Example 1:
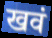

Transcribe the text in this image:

खवं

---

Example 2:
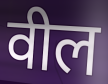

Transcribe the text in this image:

वील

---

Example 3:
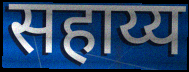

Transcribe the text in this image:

सहाय्य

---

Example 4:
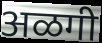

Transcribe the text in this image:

अळगी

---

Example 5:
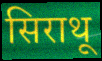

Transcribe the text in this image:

सिराथू